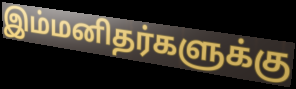
இம்மனிதர்களுக்கு